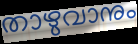
താഴുവാനും